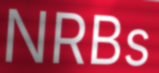
NRBs